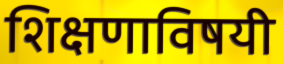
शिक्षणाविषयी